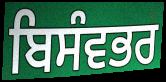
ਬਿਸੰਵਭਰ